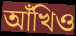
আঁখিও